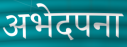
अभेदपना